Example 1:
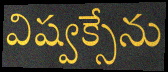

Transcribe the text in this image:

విష్వక్సేను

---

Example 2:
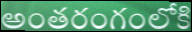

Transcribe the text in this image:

అంతరంగంలోకి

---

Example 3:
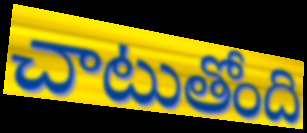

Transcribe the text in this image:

చాటుతోంది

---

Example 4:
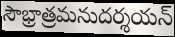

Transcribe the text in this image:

సౌభ్రాత్రమనుదర్శయన్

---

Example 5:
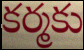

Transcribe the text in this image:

కర్మకు